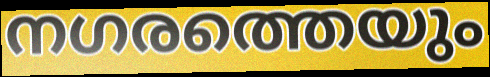
നഗരത്തെയും